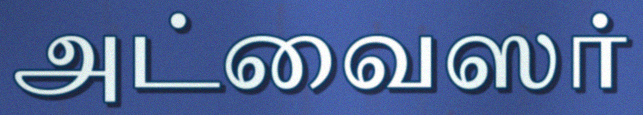
அட்வைஸர்